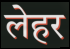
लेहर